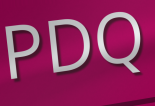
PDQ